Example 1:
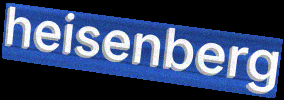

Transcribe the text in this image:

heisenberg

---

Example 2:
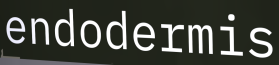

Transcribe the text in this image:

endodermis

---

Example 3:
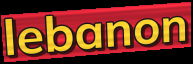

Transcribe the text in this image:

lebanon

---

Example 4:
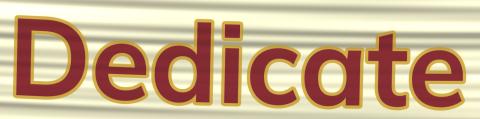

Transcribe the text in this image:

Dedicate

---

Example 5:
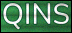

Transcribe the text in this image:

QINS